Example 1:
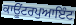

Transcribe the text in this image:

ਕਾਊਂਟਰਪੁਆਇੰਟ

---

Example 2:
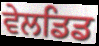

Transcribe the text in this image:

ਵੇਲਡਿਡ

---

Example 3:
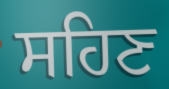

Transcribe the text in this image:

ਸਹਿਣ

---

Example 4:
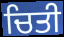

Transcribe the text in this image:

ਚਿਤੀ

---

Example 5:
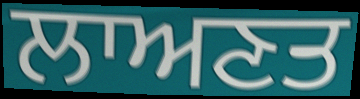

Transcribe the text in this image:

ਲਾਅਣਤ